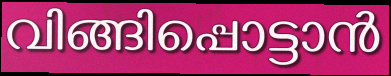
വിങ്ങിപ്പൊട്ടാൻ